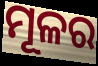
ମୂଳର